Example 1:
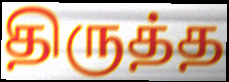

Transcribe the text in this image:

திருத்த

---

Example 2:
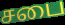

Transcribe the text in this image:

சபை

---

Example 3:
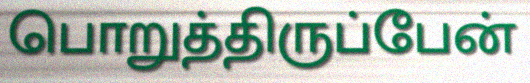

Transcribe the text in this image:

பொறுத்திருப்பேன்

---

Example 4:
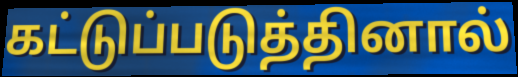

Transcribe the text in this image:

கட்டுப்படுத்தினால்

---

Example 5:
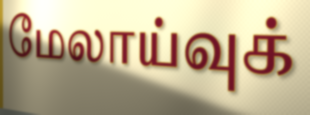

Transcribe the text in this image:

மேலாய்வுக்